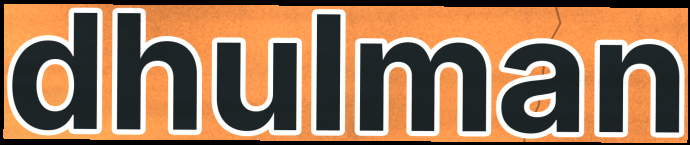
dhulman